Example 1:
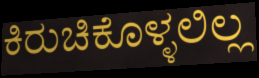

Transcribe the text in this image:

ಕಿರುಚಿಕೊಳ್ಳಲಿಲ್ಲ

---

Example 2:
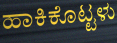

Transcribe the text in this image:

ಹಾಕಿಕೊಟ್ಟಳು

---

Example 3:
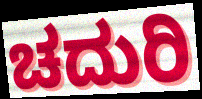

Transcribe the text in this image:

ಚದುರಿ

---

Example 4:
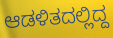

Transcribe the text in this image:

ಆಡಳಿತದಲ್ಲಿದ್ದ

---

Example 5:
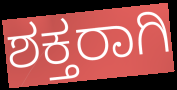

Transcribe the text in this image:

ಶಕ್ತರಾಗಿ